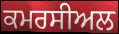
ਕਮਰਸੀਅਲ